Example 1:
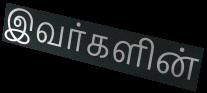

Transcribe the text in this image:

இவர்களின்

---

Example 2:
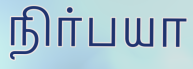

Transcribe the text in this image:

நிர்பயா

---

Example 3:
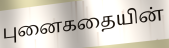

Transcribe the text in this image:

புனைகதையின்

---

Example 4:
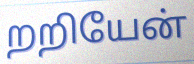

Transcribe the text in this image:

றறியேன்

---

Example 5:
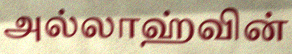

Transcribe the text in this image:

அல்லாஹ்வின்